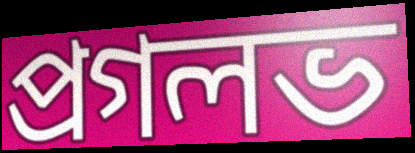
প্রগলভ